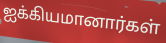
ஐக்கியமானார்கள்